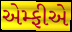
એમ્ફીએ